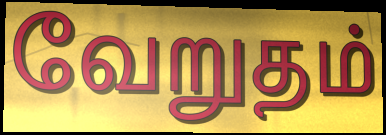
வேறுதம்